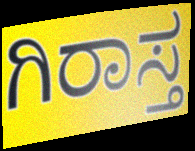
ಗಿರಾಸ್ತ